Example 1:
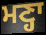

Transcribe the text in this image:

ਮਣ੍ਹਾ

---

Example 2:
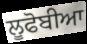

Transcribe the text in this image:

ਲੂਫੋਬੀਆ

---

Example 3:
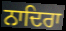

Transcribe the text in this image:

ਨਾਦਿਰਾ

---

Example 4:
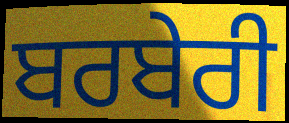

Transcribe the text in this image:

ਬਰਬੇਰੀ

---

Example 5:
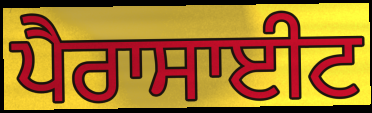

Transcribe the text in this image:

ਪੈਰਾਸਾਈਟ